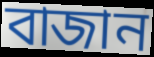
বাজান